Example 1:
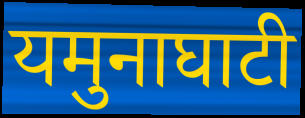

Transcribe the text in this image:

यमुनाघाटी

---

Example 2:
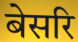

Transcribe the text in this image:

बेसरि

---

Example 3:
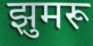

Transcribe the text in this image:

झुमरू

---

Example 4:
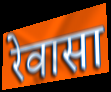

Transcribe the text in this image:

रेवासा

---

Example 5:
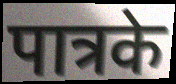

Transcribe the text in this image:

पात्रके